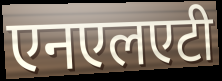
एनएलएटी